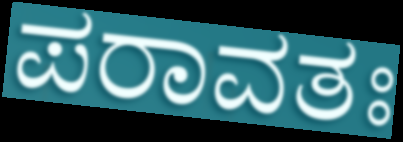
ಪರಾವತಃ